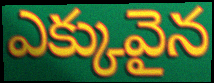
ఎక్కువైన